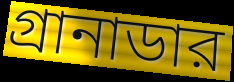
গ্রানাডার